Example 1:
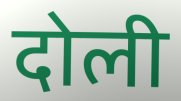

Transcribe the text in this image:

दोली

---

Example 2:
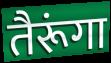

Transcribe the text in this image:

तैरूंगा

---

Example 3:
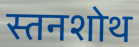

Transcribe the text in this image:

स्तनशोथ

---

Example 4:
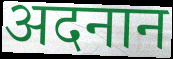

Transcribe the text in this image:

अदनान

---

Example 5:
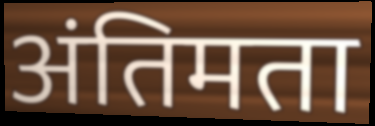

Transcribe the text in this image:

अंतिमता